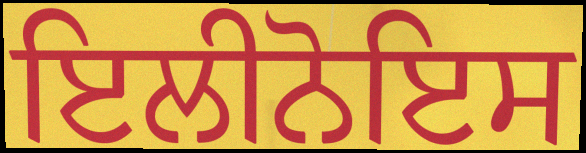
ਇਲੀਨੋਇਸ